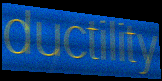
ductility